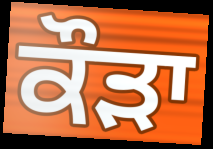
ਕੌਡ਼ਾ